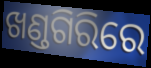
ଖଣ୍ଡଗିରିରେ